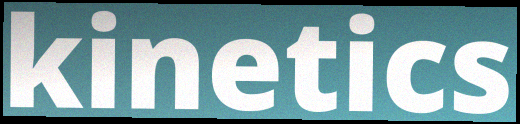
kinetics